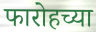
फारोहच्या